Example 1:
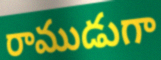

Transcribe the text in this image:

రాముడుగా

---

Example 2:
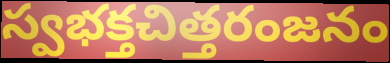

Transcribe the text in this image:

స్వభక్తచిత్తరంజనం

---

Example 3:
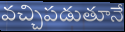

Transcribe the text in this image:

వచ్చిపడుతూనే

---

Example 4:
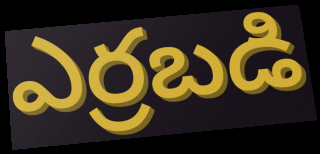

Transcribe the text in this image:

ఎర్రబడి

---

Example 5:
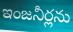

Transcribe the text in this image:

ఇంజనీర్లను